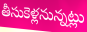
తీసుకెళ్లనున్నట్లు